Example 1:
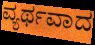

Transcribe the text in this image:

ವ್ಯರ್ಥವಾದ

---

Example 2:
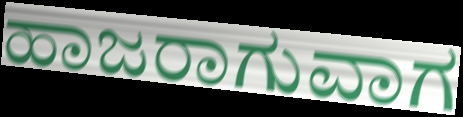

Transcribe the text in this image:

ಹಾಜರಾಗುವಾಗ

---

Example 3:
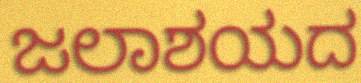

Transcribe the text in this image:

ಜಲಾಶಯದ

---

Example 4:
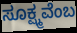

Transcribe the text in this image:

ಸೂಕ್ಷ್ಮವೆಂಬ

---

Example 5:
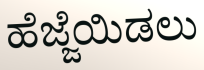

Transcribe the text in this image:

ಹೆಜ್ಜೆಯಿಡಲು